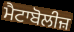
ਮੈਟਾਬੋਲੀਜ਼